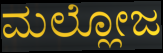
ಮಲ್ಲೋಜ